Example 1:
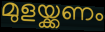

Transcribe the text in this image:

മുളയ്ക്കണം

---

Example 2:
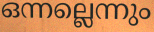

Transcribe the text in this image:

ഒന്നല്ലെന്നും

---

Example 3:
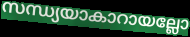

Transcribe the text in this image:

സന്ധ്യയാകാറായല്ലോ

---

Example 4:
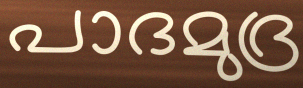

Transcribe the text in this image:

പാദമുദ്ര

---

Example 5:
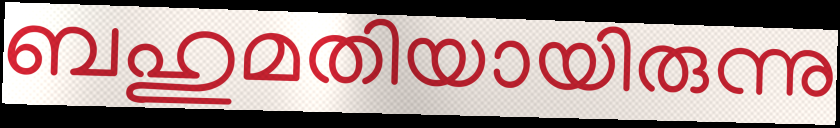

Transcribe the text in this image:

ബഹുമതിയായിരുന്നു